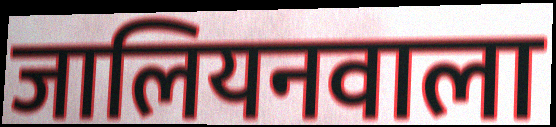
जालियनवाला